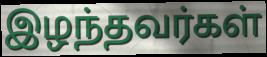
இழந்தவர்கள்